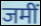
जमीं